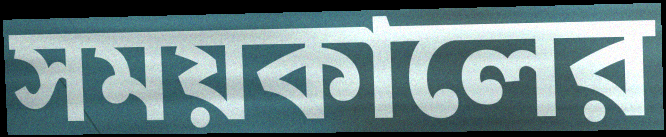
সময়কালের